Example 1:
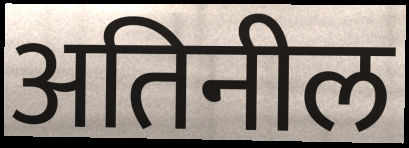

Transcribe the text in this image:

अतिनील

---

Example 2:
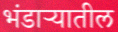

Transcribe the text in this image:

भंडाऱ्यातील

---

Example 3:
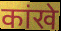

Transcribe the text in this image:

कांखे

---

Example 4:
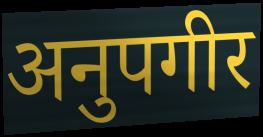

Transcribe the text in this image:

अनुपगीर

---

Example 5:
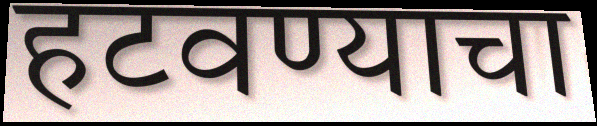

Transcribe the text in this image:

हटवण्याचा